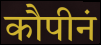
कौपीनं